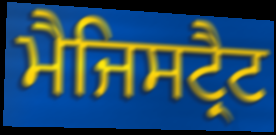
ਮੈਜਿਸਟ੍ਰੈਟ